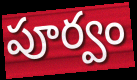
పూర్వం